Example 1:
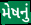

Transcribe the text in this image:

મેષનું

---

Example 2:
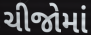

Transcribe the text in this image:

ચીજોમાં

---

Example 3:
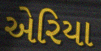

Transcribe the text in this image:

એરિયા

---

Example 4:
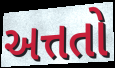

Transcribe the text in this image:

અત્તતો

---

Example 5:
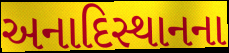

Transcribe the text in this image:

અનાદિસ્થાનના